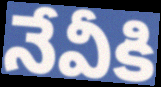
నేవీకి